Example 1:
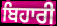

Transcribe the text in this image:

ਬਿਹਾਰੀ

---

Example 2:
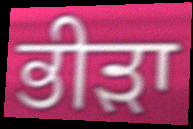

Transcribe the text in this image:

ਭੀੜਾ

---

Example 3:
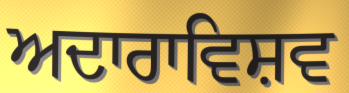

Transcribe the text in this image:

ਅਦਾਰਾਵਿਸ਼ਵ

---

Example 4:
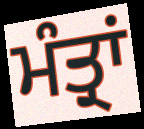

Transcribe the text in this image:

ਮੰਤ੍ਰਾਂ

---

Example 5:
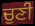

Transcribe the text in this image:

ਚੁਣੀ